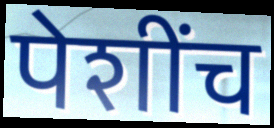
पेशींच